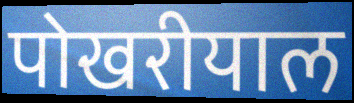
पोखरीयाल